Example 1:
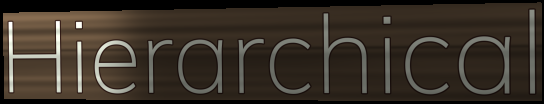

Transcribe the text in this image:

Hierarchical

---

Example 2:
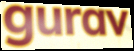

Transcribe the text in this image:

gurav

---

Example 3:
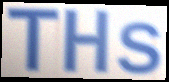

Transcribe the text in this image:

THs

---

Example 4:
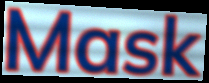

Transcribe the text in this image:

Mask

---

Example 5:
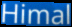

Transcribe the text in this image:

Himal